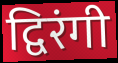
द्विरंगी